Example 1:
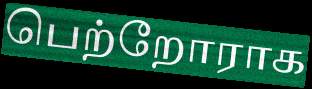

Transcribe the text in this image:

பெற்றோராக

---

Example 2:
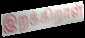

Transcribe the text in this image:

இறக்கிறாள்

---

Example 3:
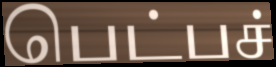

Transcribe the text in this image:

பெட்பச்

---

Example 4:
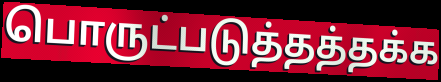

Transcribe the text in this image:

பொருட்படுத்தத்தக்க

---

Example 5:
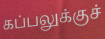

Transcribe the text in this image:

கப்பலுக்குச்